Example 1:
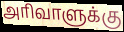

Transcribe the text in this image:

அரிவாளுக்கு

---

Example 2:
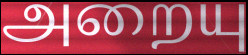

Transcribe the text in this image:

அறையு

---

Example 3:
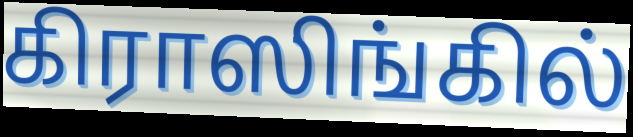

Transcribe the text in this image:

கிராஸிங்கில்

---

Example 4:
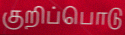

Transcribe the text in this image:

குறிப்பொடு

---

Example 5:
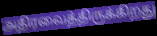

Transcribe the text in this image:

அதிரவைத்திருக்கிறது